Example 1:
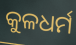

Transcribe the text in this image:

କୁଳଧର୍ମ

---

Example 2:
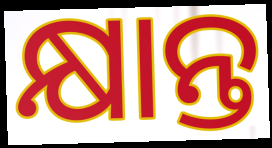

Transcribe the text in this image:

କ୍ଷାନ୍ତ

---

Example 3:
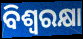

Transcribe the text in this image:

ବିଶ୍ୱରକ୍ଷା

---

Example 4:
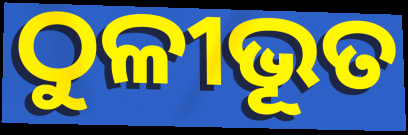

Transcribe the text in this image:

ଠୁଳୀଭୂତ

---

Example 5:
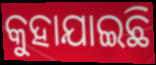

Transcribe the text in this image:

କୁହାଯାଇଛି